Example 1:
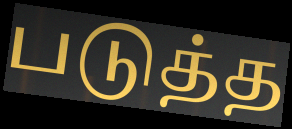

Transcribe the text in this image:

படுத்த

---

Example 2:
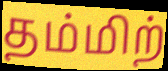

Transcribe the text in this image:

தம்மிற்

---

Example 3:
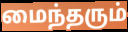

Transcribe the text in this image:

மைந்தரும்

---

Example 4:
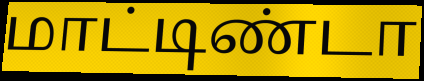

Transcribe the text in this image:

மாட்டிண்டா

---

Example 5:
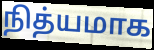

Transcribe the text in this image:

நித்யமாக